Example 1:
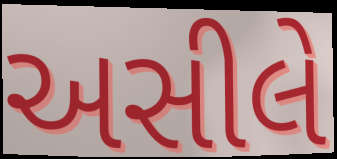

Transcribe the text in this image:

અસીલે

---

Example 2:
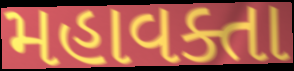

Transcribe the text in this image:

મહાવક્તા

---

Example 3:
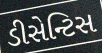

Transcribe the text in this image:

ડીસેન્ટિસ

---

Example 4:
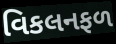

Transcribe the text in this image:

વિકલનફળ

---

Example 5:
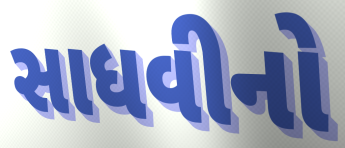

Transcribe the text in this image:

સાધવીનો